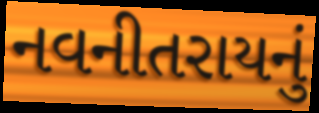
નવનીતરાયનું